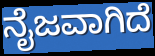
ನೈಜವಾಗಿದೆ